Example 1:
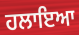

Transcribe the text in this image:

ਹਲਾਇਆ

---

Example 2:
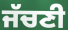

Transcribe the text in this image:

ਜੱਚਣੀ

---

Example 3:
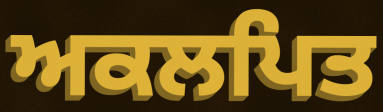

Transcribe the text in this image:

ਅਕਲਪਿਤ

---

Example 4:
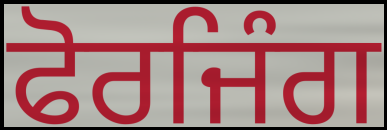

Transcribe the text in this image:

ਫੋਰਜਿੰਗ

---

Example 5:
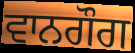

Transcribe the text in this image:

ਵਾਨਗੌਗ